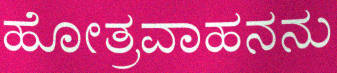
ಹೋತ್ರವಾಹನನು